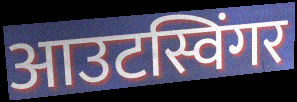
आउटस्विंगर